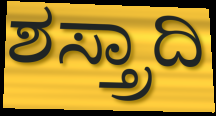
ಶಸ್ತ್ರಾದಿ